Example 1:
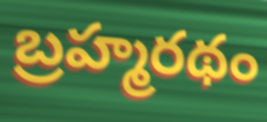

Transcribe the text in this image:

బ్రహ్మరథం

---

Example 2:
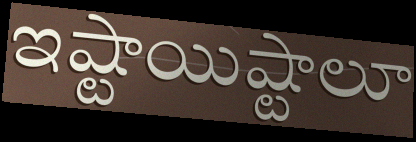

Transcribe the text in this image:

ఇష్టాయిష్టాలూ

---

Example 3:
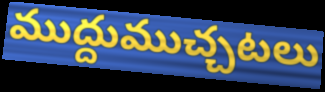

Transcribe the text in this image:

ముద్దుముచ్చటలు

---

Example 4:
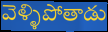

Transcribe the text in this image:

వెళ్ళిపోతాడు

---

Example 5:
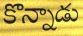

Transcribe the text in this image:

కొన్నాడు